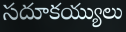
సదూకయ్యులు